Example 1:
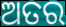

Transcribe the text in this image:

ଅତର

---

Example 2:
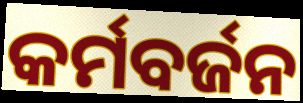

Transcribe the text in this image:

କର୍ମବର୍ଜନ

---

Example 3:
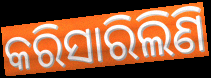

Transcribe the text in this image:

କରିସାରିଲିଣି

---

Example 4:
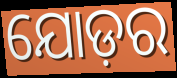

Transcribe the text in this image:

ଯୋଡ଼ର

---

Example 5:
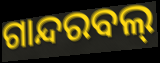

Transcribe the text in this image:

ଗାନ୍ଦରବଲ୍